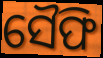
ସୈଫି